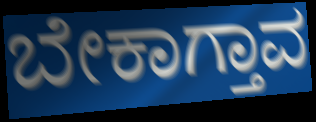
ಬೇಕಾಗ್ತಾವ